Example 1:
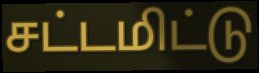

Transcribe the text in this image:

சட்டமிட்டு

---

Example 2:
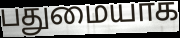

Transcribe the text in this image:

பதுமையாக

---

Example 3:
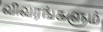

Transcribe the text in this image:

விவரங்களும்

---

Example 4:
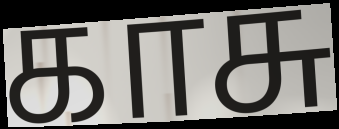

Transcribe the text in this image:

காசு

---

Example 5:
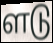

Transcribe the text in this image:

ளடு